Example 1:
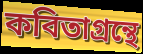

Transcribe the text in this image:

কবিতাগ্রন্থে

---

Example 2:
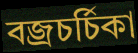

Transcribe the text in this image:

বজ্রচর্চিকা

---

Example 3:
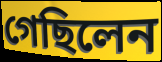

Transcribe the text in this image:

গেছিলেন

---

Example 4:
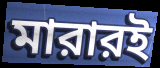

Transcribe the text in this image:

মারারই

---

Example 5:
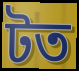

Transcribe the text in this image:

টত